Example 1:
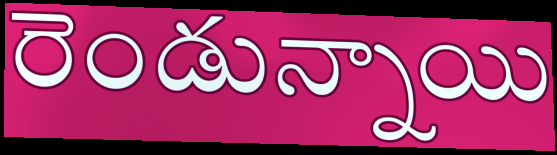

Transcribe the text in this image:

రెండున్నాయి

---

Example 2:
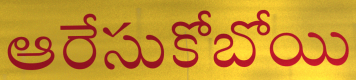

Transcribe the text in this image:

ఆరేసుకోబోయి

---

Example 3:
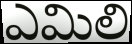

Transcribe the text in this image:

ఎమిలి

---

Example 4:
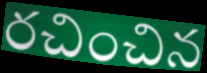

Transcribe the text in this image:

రచించిన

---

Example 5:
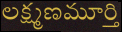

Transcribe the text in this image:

లక్ష్మణమూర్తి